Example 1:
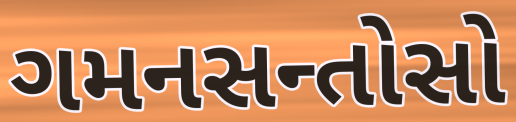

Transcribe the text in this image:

ગમનસન્તોસો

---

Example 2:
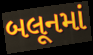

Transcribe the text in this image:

બલૂનમાં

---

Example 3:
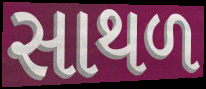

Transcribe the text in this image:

સાથળ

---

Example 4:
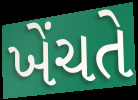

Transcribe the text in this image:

ખેંચતે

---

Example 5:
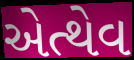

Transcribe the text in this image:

એત્થેવ